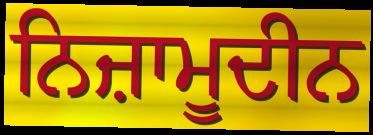
ਨਿਜ਼ਾਮੂਦੀਨ